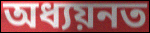
অধ্যয়নত